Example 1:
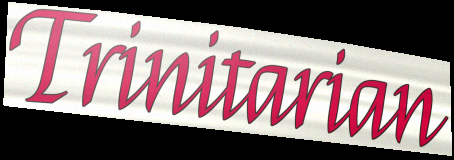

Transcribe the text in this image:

Trinitarian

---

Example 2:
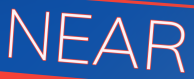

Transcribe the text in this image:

NEAR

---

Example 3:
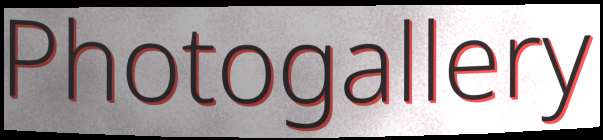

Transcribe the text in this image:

Photogallery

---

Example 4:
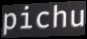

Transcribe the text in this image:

pichu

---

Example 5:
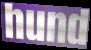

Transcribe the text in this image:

hund